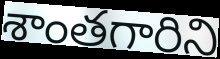
శాంతగారిని